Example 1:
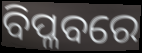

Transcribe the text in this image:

ବିପ୍ଳବରେ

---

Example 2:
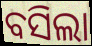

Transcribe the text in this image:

ବସିଲା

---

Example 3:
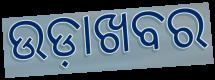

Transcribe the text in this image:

ଉଡ଼ାଖବର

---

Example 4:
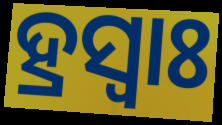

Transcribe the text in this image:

ହ୍ରସ୍ଵାଃ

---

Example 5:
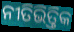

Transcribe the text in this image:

ନୀତିଭିତ୍ତିକ